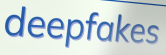
deepfakes